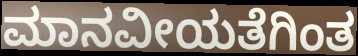
ಮಾನವೀಯತೆಗಿಂತ